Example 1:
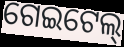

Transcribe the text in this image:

ଗେଇଟେଲ୍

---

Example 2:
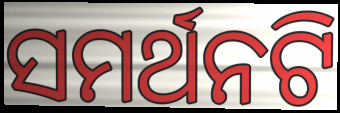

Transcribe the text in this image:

ସମର୍ଥନଟି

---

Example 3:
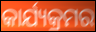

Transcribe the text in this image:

କାର୍ଯ୍ୟକ୍ରମର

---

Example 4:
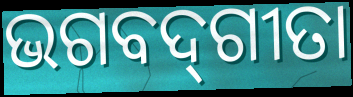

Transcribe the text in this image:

ଭଗବଦ୍‍ଗୀତା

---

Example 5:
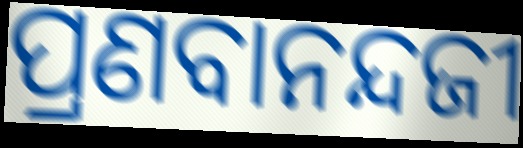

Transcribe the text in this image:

ପ୍ରଣବାନନ୍ଦଜୀ